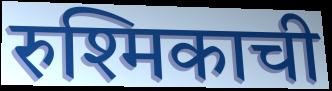
रुश्मिकाची